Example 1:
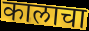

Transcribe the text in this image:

कालाचा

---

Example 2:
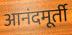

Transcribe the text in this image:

आनंदमूर्ती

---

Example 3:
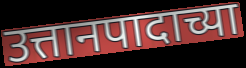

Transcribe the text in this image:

उत्तानपादाच्या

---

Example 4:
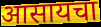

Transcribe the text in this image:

आसायचा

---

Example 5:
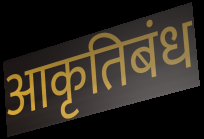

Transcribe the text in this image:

आकृतिबंध